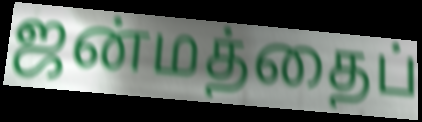
ஜன்மத்தைப்